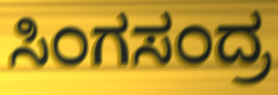
ಸಿಂಗಸಂದ್ರ